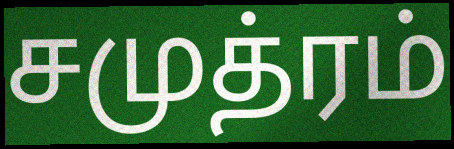
சமுத்ரம்